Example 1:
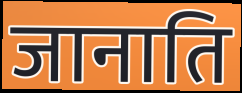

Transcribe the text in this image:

जानाति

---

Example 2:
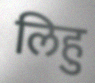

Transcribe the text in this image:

लिहु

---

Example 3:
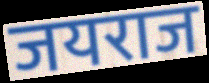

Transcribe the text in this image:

जयराज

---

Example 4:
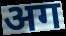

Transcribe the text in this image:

अग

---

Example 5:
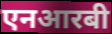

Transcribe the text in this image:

एनआरबी